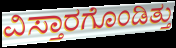
ವಿಸ್ತಾರಗೊಂಡಿತ್ತು